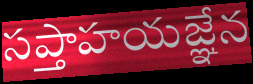
సప్తాహయజ్ఞేన